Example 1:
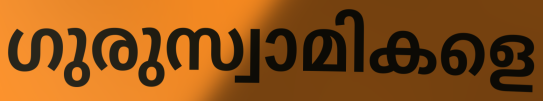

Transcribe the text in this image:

ഗുരുസ്വാമികളെ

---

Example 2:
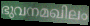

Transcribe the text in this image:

ഭുവനമഖിലം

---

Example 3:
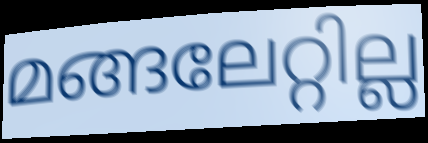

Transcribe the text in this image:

മങ്ങലേറ്റില്ല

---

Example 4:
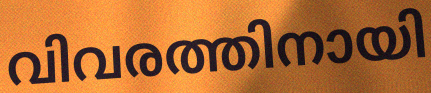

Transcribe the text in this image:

വിവരത്തിനായി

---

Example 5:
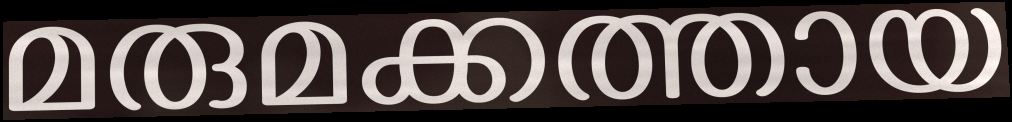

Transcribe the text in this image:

മരുമക്കത്തായ